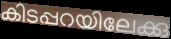
കിടപ്പറയിലേക്കു